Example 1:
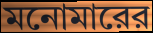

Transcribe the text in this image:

মনোমারের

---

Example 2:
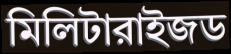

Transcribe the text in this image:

মিলিটারাইজড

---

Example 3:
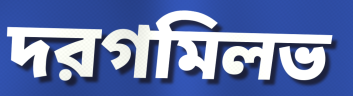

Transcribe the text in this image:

দরগমিলভ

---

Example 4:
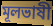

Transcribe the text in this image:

মূলভাষী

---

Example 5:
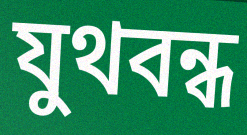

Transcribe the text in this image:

যুথবন্ধ